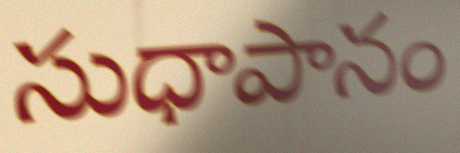
సుధాపానం